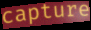
capture